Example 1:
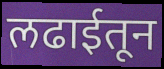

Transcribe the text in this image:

लढाईतून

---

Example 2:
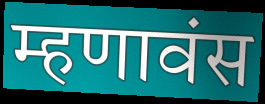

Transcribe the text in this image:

म्हणावंस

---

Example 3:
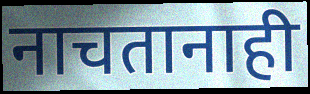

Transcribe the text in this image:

नाचतानाही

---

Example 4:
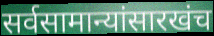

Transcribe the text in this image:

सर्वसामान्यांसारखंच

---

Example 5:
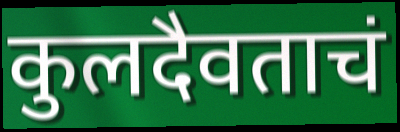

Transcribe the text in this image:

कुलदैवताचं